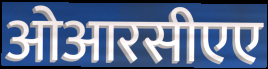
ओआरसीएए